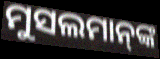
ମୁସଲମାନ୍‍ଙ୍କ